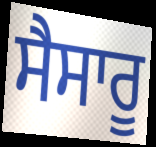
ਸੈਸਾਰੂ